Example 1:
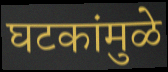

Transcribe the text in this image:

घटकांमुळे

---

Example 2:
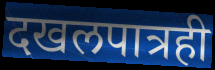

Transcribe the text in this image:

दखलपात्रही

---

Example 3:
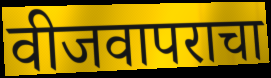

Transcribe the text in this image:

वीजवापराचा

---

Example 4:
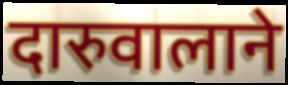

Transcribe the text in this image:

दारुवालाने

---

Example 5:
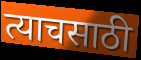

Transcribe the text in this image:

त्याचसाठी